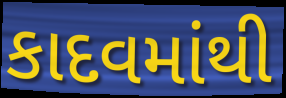
કાદવમાંથી